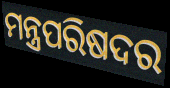
ମନ୍ତ୍ରପରିଷଦର